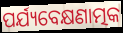
ପର୍ଯ୍ୟବେକ୍ଷଣାତ୍ମକ